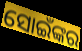
ସୋଇଁଙ୍କର